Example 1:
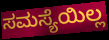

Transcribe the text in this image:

ಸಮಸ್ಯೆಯಿಲ್ಲ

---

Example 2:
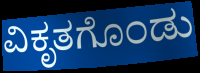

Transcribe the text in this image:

ವಿಕೃತಗೊಂಡು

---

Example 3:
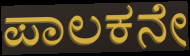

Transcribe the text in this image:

ಪಾಲಕನೇ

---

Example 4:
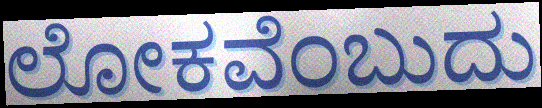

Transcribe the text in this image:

ಲೋಕವೆಂಬುದು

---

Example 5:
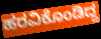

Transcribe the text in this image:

ಹರವಿಕೊಂಡಿದ್ದ